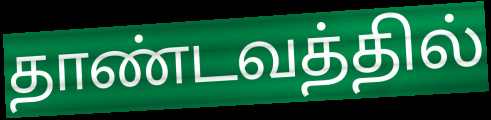
தாண்டவத்தில்